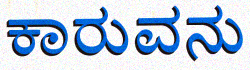
ಕಾರುವನು